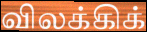
விலக்கிக்